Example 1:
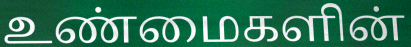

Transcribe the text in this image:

உண்மைகளின்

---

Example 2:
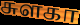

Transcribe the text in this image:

சுளகா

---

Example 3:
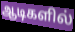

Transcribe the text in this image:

ஆடிகளில்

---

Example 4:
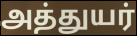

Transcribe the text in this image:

அத்துயர்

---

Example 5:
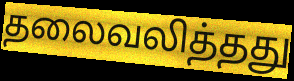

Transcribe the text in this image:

தலைவலித்தது